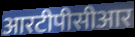
आरटीपीसीआर